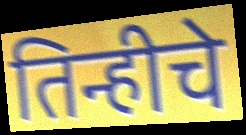
तिन्हीचे